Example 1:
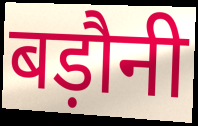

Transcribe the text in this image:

बड़ौनी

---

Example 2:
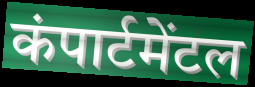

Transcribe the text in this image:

कंपार्टमेंटल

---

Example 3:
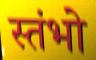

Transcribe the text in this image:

स्तंभो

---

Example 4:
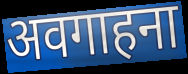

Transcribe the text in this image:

अवगाहना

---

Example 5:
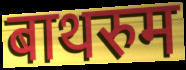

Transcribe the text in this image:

बाथरुम